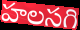
హలసగి